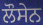
ਲੌਸੇਨ